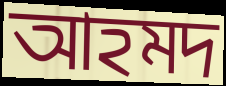
আহমদ